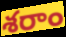
శరాం